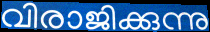
വിരാജിക്കുന്നു